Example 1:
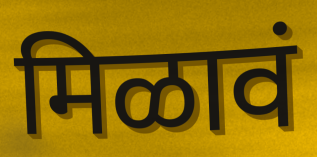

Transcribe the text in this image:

मिळावं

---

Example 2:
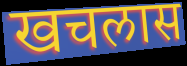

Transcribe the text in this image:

खचलास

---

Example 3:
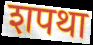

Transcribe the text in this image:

शपथा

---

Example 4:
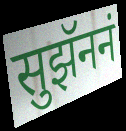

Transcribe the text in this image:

सुझॅननं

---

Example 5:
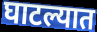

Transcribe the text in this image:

घाटल्यात